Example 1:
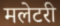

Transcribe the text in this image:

मलेटरी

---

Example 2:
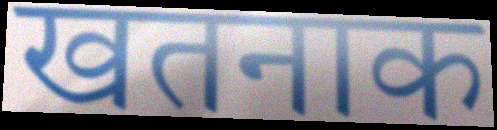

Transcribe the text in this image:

खतनाक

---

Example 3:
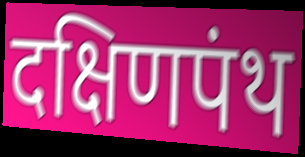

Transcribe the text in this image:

दक्षिणपंथ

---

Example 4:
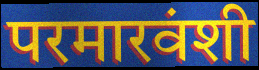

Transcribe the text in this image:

परमारवंशी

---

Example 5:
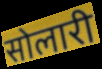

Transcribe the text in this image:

सोलारी